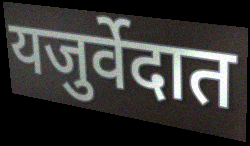
यजुर्वेदात